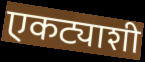
एकट्याशी